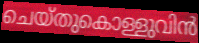
ചെയ്തുകൊള്ളുവിൻ